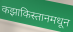
कझाकिस्तानमधून